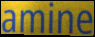
amine